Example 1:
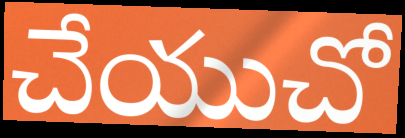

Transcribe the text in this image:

చేయుచో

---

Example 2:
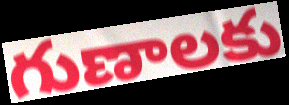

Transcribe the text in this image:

గుణాలకు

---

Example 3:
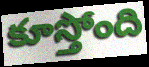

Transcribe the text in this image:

కూస్తోంది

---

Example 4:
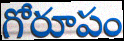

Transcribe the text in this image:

గోరూపం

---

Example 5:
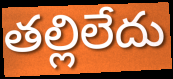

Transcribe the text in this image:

తల్లిలేదు